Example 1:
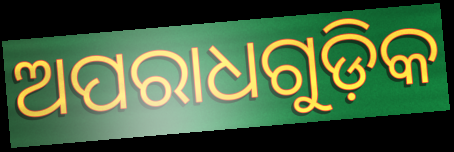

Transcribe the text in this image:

ଅପରାଧଗୁଡ଼ିକ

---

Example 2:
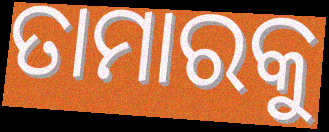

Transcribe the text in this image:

ତାମାରକୁ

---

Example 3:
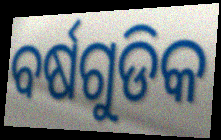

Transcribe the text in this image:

ବର୍ଷଗୁଡିକ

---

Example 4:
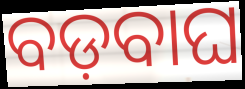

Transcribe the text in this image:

ବଡ଼ବାଘ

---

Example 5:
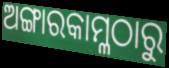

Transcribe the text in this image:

ଅଙ୍ଗାରକାମ୍ଳଠାରୁ